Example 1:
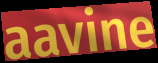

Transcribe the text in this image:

aavine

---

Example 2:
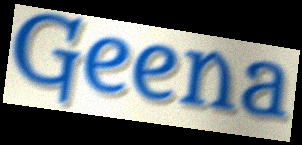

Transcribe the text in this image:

Geena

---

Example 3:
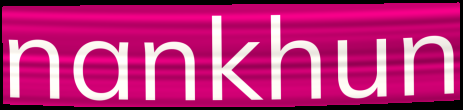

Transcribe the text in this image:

nankhun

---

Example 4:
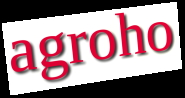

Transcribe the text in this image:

agroho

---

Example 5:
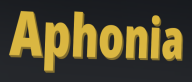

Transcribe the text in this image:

Aphonia